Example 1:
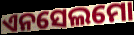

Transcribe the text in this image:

ଏନସେଲମୋ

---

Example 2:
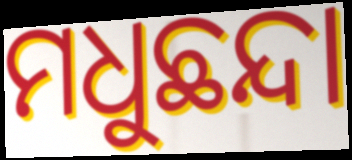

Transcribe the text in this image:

ମଧୁଛନ୍ଦା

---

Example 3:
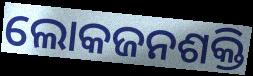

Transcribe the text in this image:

ଲୋକଜନଶକ୍ତି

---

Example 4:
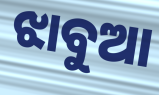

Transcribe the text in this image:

ଝାବୁଆ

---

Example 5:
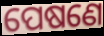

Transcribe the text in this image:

ପେଷଣେ